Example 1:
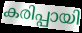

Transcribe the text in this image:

കരിപ്പായി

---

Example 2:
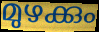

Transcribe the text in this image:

മുഴക്കും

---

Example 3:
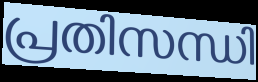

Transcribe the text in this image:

പ്രതിസന്ധി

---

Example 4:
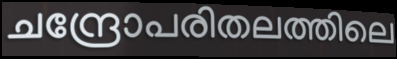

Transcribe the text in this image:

ചന്ദ്രോപരിതലത്തിലെ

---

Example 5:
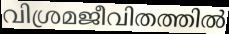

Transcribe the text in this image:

വിശ്രമജീവിതത്തിൽ